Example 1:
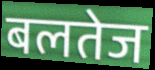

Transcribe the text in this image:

बलतेज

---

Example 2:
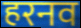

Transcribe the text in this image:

हरनव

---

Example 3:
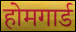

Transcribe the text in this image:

होमगार्ड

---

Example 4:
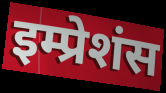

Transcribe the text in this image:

इम्प्रेशंस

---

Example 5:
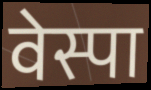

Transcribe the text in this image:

वेस्‍पा